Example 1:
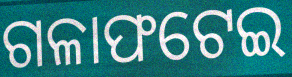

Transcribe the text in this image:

ଗଳାଫଟେଇ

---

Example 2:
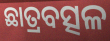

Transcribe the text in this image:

ଛାତ୍ରବତ୍ସଳ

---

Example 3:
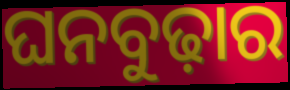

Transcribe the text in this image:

ଘନବୁଢ଼ାର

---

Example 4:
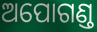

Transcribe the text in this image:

ଅପୋଗଣ୍ଡ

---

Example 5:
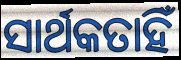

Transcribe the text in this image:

ସାର୍ଥକତାହିଁ